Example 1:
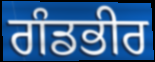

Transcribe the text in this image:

ਗੰਡਭੀਰ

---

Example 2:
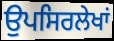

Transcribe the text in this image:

ਉਪਸਿਰਲੇਖਾਂ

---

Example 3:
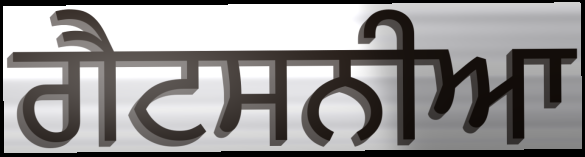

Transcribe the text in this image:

ਗੈਟਸਨੀਆ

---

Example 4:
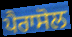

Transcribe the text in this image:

ਪੈਰਾਸੋਲ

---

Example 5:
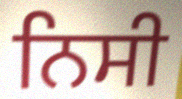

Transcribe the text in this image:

ਨਿਸੀ